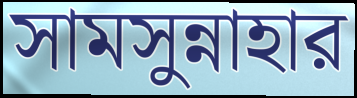
সামসুন্নাহার